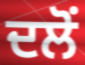
ਦਲੋਂ